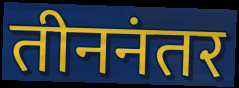
तीननंतर